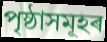
পৃষ্ঠাসমূহৰ